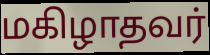
மகிழாதவர்